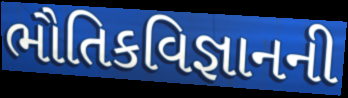
ભૌતિકવિજ્ઞાનની